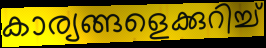
കാര്യങ്ങളെക്കുറിച്ച്